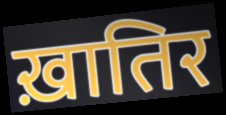
ख़ातिर